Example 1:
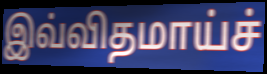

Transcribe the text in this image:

இவ்விதமாய்ச்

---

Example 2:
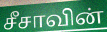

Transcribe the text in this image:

சீசாவின்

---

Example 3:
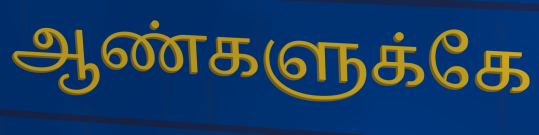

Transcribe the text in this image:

ஆண்களுக்கே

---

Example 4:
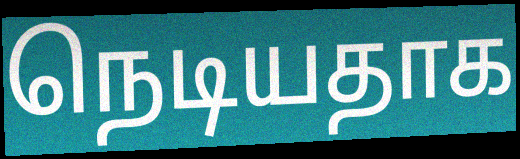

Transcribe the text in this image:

நெடியதாக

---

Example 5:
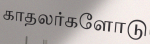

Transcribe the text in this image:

காதலர்களோடு